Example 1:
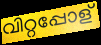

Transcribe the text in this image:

വിറ്റപ്പോള്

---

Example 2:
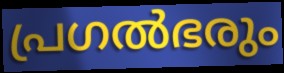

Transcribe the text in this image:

പ്രഗൽഭരും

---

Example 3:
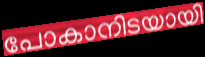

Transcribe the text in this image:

പോകാനിടയായി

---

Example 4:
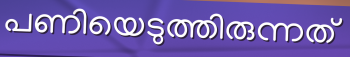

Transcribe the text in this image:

പണിയെടുത്തിരുന്നത്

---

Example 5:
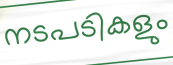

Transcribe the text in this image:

നടപടികളും